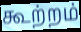
கூற்றம்